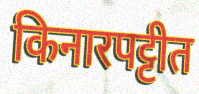
किनारपट्टीत